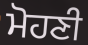
ਮੋਹਣੀ